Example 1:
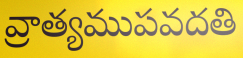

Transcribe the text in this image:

వ్రాత్యముపవదతి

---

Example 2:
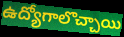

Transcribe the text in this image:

ఉద్యోగాలొచ్చాయి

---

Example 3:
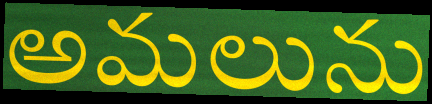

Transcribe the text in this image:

అమలును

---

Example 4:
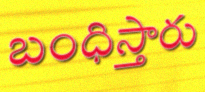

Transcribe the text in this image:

బంధిస్తారు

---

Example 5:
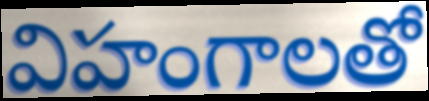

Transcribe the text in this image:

విహంగాలతో